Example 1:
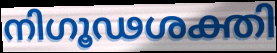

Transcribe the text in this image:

നിഗൂഢശക്തി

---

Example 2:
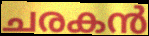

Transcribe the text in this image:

ചരകൻ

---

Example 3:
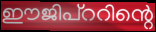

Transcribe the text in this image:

ഈജിപ്ററിന്റെ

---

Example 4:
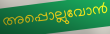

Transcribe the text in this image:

അപ്പൊല്ലുവോൻ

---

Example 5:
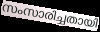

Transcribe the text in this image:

സംസാരിച്ചതായി